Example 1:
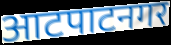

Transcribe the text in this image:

आटपाटनगर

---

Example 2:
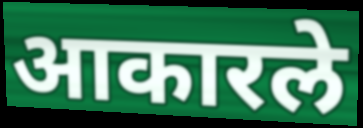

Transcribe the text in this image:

आकारले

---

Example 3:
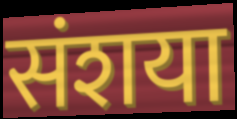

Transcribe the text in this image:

संशया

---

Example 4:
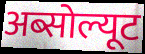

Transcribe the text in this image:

अब्सोल्यूट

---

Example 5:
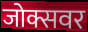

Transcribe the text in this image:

जोक्सवर